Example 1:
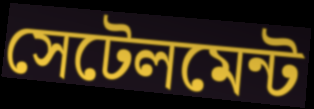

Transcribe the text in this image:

সেটেলমেন্ট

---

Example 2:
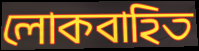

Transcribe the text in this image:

লোকবাহিত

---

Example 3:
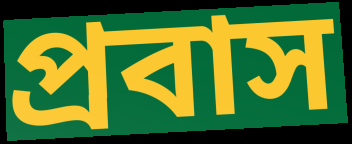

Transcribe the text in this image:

প্রবাস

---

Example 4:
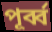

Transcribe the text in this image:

পূর্ব্ব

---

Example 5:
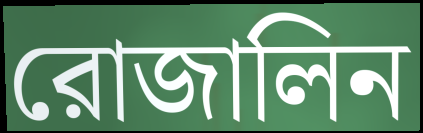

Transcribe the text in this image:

রোজালিন